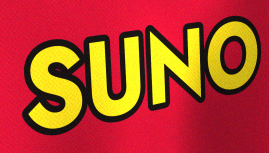
SUNO